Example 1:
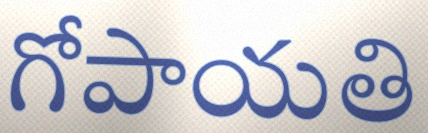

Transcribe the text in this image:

గోపాయతి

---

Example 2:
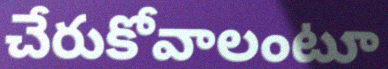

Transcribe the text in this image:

చేరుకోవాలంటూ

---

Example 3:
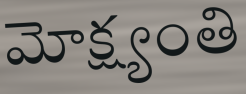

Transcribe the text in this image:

మోక్ష్యంతి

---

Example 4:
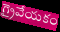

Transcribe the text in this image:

గ్రైవేయకం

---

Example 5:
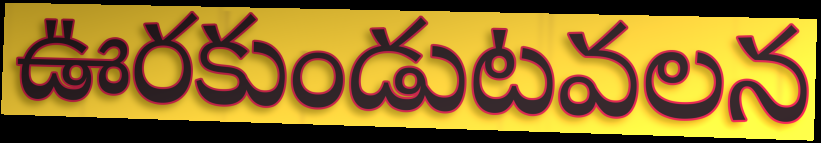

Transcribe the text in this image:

ఊరకుండుటవలన